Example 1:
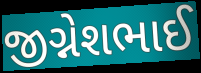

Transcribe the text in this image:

જીગ્નેશભાઈ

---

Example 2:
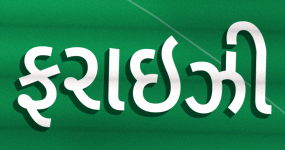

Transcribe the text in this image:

ફરાઇઝી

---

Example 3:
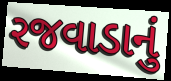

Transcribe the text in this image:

રજવાડાનું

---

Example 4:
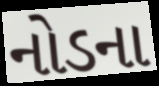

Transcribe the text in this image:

નોડના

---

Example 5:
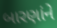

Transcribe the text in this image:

બારણાંને